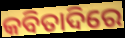
କବିତାଦିରେ